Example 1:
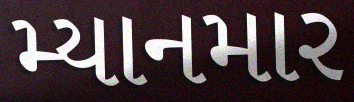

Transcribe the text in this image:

મ્યાનમાર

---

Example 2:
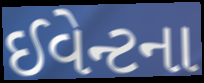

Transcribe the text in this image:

ઈવેન્ટના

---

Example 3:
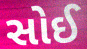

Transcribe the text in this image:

સોઈ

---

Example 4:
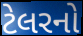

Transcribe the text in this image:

ટેલરનો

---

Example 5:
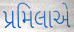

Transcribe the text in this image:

પ્રમિલાએ